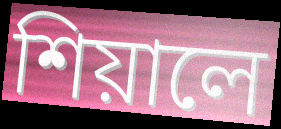
শিয়ালে